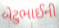
બેટુભાઈની